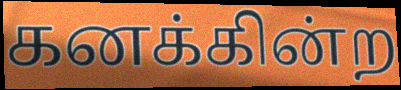
கனக்கின்ற